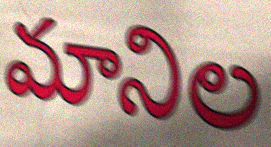
మానిల